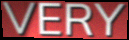
VERY